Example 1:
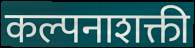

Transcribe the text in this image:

कल्पनाशक्ती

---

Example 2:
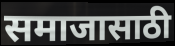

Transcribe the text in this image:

समाजासाठी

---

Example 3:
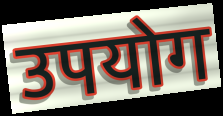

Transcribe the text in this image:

उपयोग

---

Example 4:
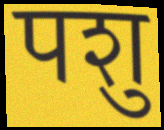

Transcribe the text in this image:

पशु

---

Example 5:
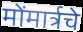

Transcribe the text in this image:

मोंमार्त्रचे